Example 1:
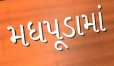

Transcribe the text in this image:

મધપૂડામાં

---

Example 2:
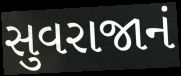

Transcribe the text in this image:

સુવરાજાનં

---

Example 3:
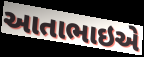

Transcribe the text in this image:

આતાભાઇએ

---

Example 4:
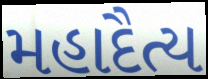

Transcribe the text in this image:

મહાદૈત્ય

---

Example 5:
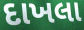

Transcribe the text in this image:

દાખલા